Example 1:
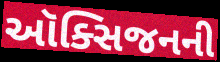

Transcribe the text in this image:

ઑક્સિજનની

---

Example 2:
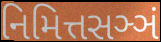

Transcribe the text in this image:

નિમિત્તસઞ્ઞં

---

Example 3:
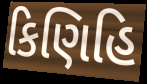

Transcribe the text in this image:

કિણિહિ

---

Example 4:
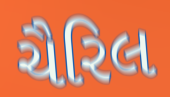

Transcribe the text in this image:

ચૈરિલ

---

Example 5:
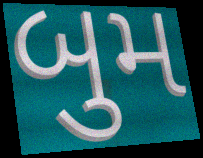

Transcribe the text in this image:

બુમ